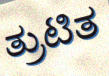
ತ್ರುಟಿತ